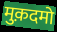
मुक़दमो